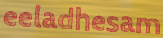
eeladhesam